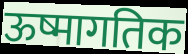
ऊष्मागतिक